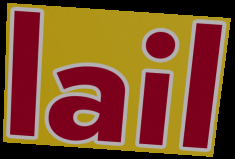
lail